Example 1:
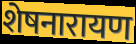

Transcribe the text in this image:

शेषनारायण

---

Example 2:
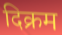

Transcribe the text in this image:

दिक्रम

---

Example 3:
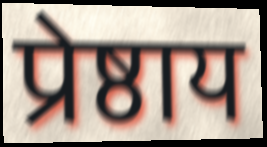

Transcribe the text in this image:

प्रेष्ठाय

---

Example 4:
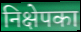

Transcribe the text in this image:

निक्षेपका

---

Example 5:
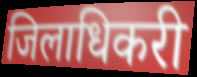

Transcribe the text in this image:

जिलाधिकरी